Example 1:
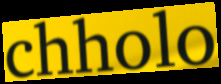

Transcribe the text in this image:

chholo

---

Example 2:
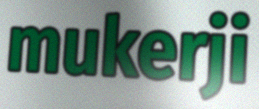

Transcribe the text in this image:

mukerji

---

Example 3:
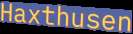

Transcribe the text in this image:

Haxthusen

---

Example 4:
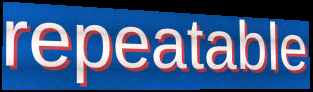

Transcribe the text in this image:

repeatable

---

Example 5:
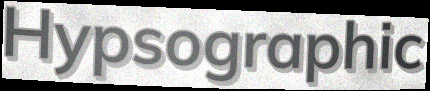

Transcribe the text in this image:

Hypsographic